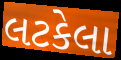
લટકેલા